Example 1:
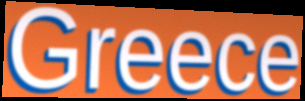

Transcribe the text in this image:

Greece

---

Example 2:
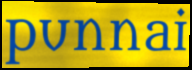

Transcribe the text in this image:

punnai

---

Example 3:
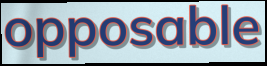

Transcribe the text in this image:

opposable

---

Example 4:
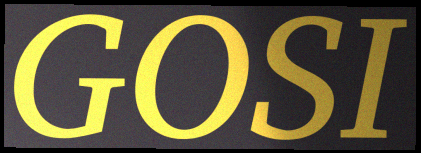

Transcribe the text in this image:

GOSI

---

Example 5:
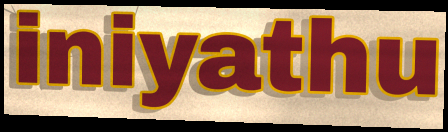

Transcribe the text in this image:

iniyathu